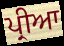
ਪ੍ਰੀਆ